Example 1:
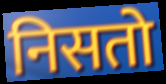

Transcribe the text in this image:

निसतो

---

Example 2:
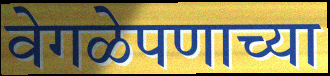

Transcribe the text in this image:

वेगळेपणाच्या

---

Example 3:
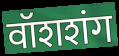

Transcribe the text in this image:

वॉशशंग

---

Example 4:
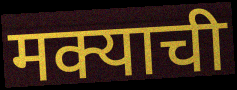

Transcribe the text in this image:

मक्याची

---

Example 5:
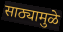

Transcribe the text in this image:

साठ्यामुळे